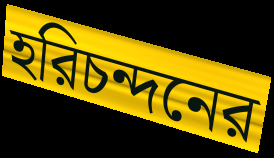
হরিচন্দনের